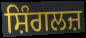
ਸ਼ਿੰਗਲਜ਼